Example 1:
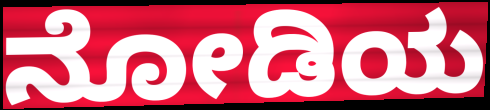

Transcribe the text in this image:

ನೋಡಿಯ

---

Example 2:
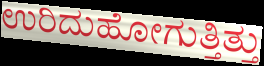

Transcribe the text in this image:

ಉರಿದುಹೋಗುತ್ತಿತ್ತು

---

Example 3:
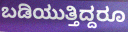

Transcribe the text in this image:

ಬಡಿಯುತ್ತಿದ್ದರೂ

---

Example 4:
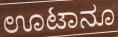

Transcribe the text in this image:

ಊಟಾನೂ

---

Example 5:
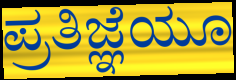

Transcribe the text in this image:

ಪ್ರತಿಜ್ಞೆಯೂ